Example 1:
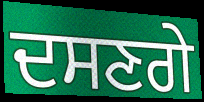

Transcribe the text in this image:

ਦਸਣਗੇ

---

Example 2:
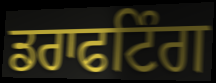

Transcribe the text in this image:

ਡਰਾਫਟਿੰਗ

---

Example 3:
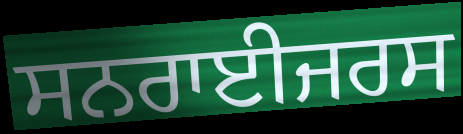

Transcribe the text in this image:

ਸਨਰਾਈਜਰਸ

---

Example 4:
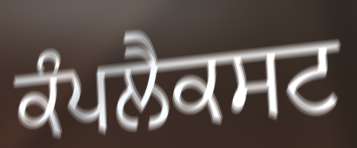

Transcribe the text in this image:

ਕੰਪਲੈਕਸਟ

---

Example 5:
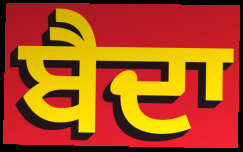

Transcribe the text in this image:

ਬੈਦਾ